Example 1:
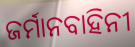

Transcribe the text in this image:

ଜର୍ମାନବାହିନୀ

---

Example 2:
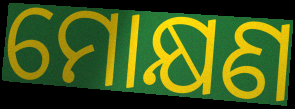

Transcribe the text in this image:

ମୋକ୍ଷଣ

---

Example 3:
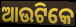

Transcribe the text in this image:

ଆଉଟିକେ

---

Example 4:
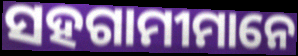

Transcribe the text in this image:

ସହଗାମୀମାନେ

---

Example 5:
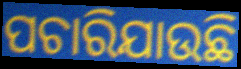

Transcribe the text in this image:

ପଚାରିଯାଉଛି